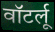
वॉटर्लू